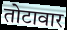
तोटावार